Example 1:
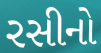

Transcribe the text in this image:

રસીનો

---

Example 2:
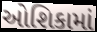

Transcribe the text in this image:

ઓશિકામાં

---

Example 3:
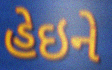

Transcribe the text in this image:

હેઇને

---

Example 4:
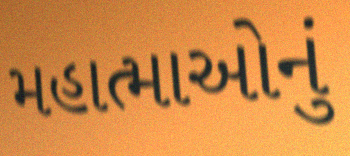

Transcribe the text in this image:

મહાત્માઓનું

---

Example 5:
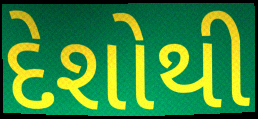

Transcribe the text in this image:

દેશોથી